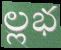
ల్లభ